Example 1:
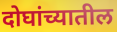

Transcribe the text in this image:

दोघांच्यातील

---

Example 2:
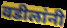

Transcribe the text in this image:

वडीलांनी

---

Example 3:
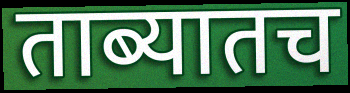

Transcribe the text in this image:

ताब्यातच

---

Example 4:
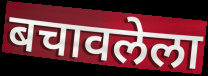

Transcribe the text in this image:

बचावलेला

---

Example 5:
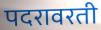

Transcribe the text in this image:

पदरावरती